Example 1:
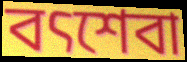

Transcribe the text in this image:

বৎশেবা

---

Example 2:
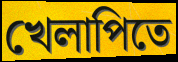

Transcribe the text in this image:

খেলাপিতে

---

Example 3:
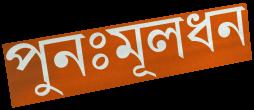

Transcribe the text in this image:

পুনঃমূলধন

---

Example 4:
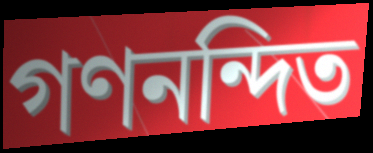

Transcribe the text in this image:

গণনন্দিত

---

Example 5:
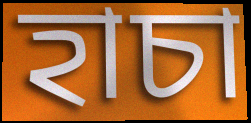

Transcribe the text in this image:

হাচা